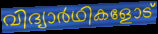
വിദ്യാർഥികളോട്